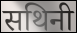
सथिनी